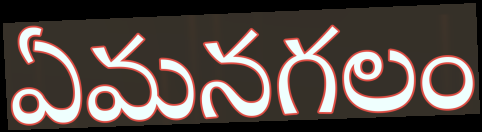
ఏమనగలం